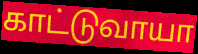
காட்டுவாயா